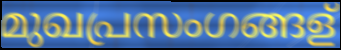
മുഖപ്രസംഗങ്ങള്